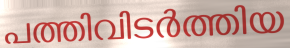
പത്തിവിടർത്തിയ